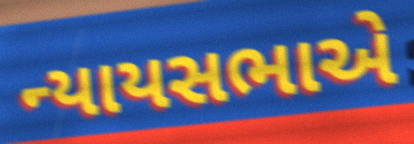
ન્યાયસભાએ